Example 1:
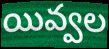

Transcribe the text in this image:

యివ్వల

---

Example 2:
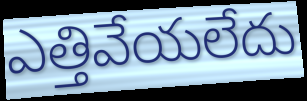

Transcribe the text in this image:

ఎత్తివేయలేదు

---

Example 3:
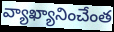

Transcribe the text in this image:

వ్యాఖ్యానించేంత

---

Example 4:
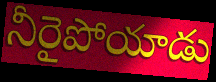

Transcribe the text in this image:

నీరైపోయాడు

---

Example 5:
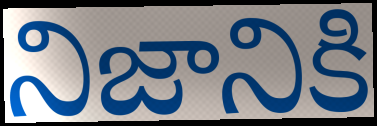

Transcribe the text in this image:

నిజానికి